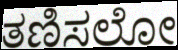
ತಣಿಸಲೋ